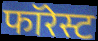
फॉरेस्ट